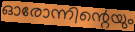
ഓരോന്നിന്റെയും